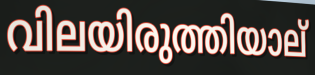
വിലയിരുത്തിയാല്